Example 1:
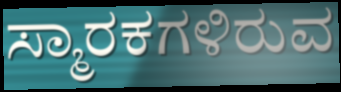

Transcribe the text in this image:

ಸ್ಮಾರಕಗಳಿರುವ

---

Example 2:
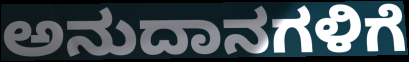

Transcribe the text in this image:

ಅನುದಾನಗಳಿಗೆ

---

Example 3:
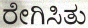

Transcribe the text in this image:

ರೇಗಿಸಿತು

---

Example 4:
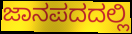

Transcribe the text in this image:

ಜಾನಪದದಲ್ಲಿ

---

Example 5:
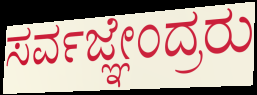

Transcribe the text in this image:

ಸರ್ವಜ್ಞೇಂದ್ರರು